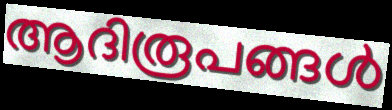
ആദിരൂപങ്ങൾ